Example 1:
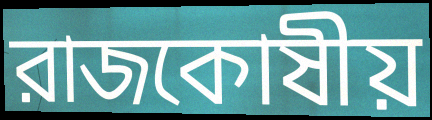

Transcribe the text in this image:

রাজকোষীয়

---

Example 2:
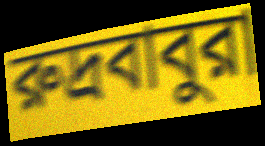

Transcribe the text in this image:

রুদ্রবাবুরা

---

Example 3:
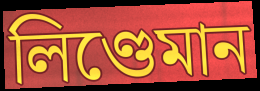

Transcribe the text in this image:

লিণ্ডেমান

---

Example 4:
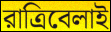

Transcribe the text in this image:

রাত্রিবেলাই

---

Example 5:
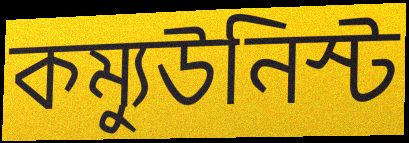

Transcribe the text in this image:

কম্যুউনিস্ট